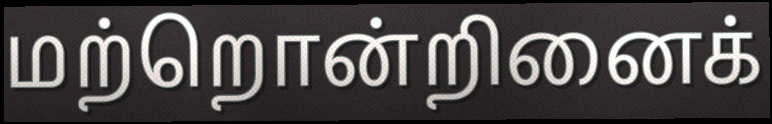
மற்றொன்றினைக்